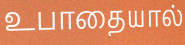
உபாதையால்